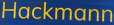
Hackmann